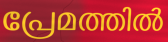
പ്രേമത്തിൽ